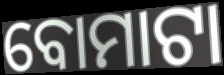
ବୋମାଟା